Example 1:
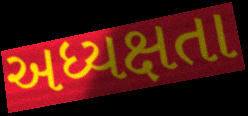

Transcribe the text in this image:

અધ્યક્ષતા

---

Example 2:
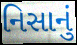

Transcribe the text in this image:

નિસાનું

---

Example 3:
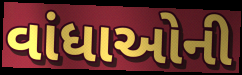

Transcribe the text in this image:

વાંધાઓની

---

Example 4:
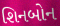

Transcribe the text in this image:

શિનબોન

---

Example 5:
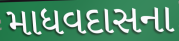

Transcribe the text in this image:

માધવદાસના